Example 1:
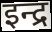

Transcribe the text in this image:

इन्द्र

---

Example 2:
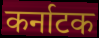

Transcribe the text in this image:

कर्नाटक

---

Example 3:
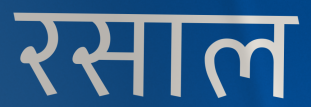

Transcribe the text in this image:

रसाल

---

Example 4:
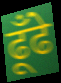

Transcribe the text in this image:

ढूँढे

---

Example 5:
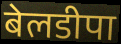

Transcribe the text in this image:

बेलडीपा